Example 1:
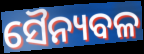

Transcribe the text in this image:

ସୈନ୍ୟବଳ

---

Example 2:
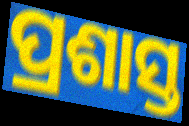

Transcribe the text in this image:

ପ୍ରଶାସ୍ତ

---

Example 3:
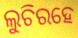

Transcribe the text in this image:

ଲୁଚିରହେ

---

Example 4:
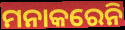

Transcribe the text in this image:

ମନାକରେନି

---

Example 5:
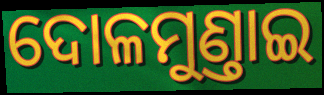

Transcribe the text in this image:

ଦୋଳମୁଣ୍ତାଇ